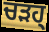
ਚੜਹ੍